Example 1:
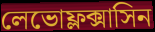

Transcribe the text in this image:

লেভোফ্লক্সাসিন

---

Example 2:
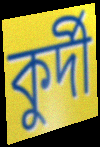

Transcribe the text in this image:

কুর্দী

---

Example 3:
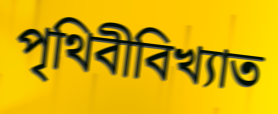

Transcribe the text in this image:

পৃথিবীবিখ্যাত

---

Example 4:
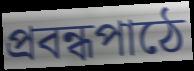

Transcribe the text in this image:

প্রবন্ধপাঠে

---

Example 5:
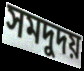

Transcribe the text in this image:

সমদুদয়